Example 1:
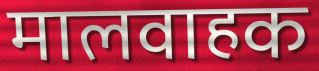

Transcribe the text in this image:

मालवाहक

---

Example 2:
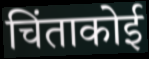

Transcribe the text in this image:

चिंताकोई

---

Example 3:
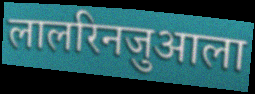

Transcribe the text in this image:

लालरिनजुआला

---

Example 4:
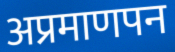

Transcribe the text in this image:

अप्रमाणपन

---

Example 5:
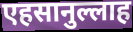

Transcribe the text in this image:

एहसानुल्लाह